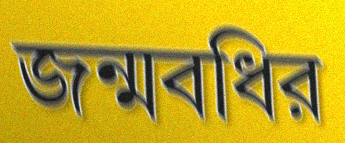
জন্মবধির